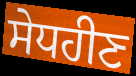
ਸੇਧਹੀਣ